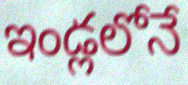
ఇండ్లలోనే